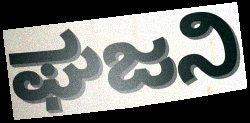
ಘಜನಿ